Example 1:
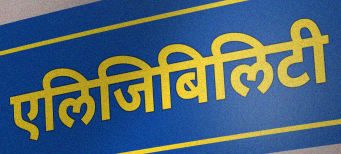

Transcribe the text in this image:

एलिजिबिलिटी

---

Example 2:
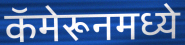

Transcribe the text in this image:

कॅमेरूनमध्ये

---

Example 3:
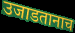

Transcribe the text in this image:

उजाडतानाच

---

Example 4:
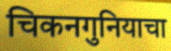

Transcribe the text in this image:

चिकनगुनियाचा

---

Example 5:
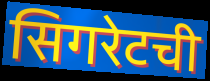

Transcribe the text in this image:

सिगरेटची